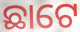
ଛାଟେ